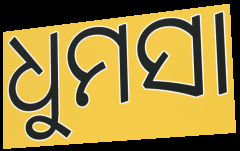
ଧୁମସା